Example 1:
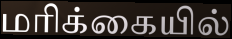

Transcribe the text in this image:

மரிக்கையில்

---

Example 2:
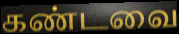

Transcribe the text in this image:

கண்டவை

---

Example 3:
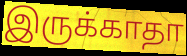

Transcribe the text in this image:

இருக்காதா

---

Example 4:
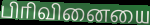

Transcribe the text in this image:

பிரிவினையை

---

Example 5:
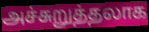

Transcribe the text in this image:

அச்சுறுத்தலாக